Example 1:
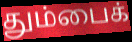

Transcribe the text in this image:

தும்பைக்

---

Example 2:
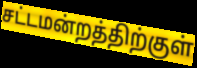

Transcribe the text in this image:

சட்டமன்றத்திற்குள்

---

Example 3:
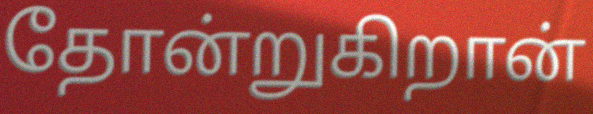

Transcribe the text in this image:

தோன்றுகிறான்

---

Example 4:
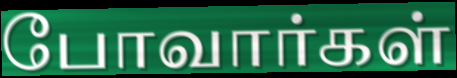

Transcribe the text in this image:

போவார்கள்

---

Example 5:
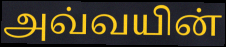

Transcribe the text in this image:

அவ்வயின்